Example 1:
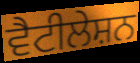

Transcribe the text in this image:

ਵੈਟੀਲੇਸ਼ਨ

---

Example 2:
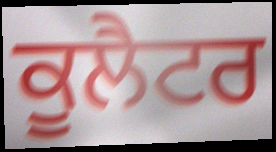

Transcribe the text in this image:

ਕੂਲੈਟਰ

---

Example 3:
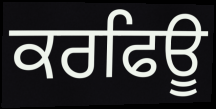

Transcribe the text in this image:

ਕਰਫਿਊ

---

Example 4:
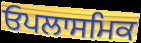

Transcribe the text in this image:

ਓਪਲਾਸਮਿਕ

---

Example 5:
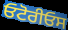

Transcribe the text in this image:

ਓਟੋਰੀਓਸ